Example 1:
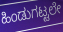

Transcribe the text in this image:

ಹಿಂಡುಗಟ್ಟಲೇ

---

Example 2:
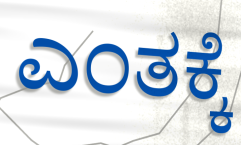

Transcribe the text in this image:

ಎಂತಕ್ಕೆ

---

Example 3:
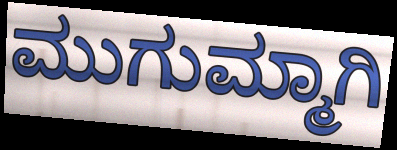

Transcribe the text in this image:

ಮುಗುಮ್ಮಾಗಿ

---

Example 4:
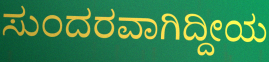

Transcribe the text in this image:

ಸುಂದರವಾಗಿದ್ದೀಯ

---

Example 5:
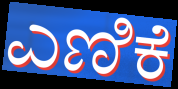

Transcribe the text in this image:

ಎಣಿಕೆ